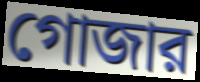
গোজার